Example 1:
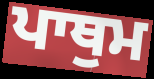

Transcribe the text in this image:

ਪਾਥੁਮ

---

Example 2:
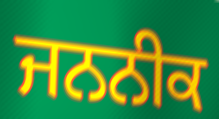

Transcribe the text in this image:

ਜਨਨੀਕ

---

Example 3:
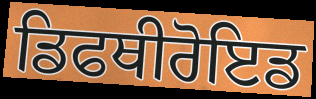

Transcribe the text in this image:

ਡਿਫਥੀਰੋਇਡ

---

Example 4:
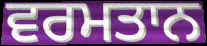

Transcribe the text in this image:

ਵਰਮਤਾਨ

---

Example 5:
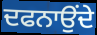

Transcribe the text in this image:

ਦਫਨਾਉਂਦੇ